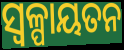
ସ୍ୱଳ୍ପାୟତନ